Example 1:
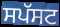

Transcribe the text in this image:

ਸਪੱਸਟ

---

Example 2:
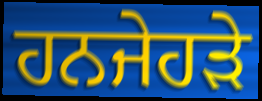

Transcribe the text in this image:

ਹਨਜੇਹੜੇ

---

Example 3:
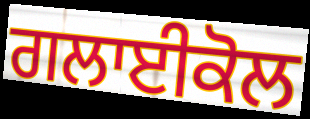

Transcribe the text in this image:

ਗਲਾਈਕੋਲ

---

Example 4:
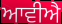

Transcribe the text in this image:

ਆਵੀਐ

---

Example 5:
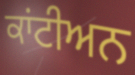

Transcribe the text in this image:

ਕਾਂਟੀਅਨ